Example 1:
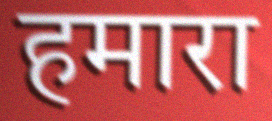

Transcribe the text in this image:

हमारा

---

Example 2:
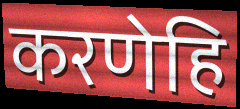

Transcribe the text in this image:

करणेहि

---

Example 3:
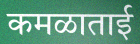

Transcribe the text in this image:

कमळाताई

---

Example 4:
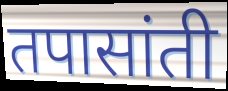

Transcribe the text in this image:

तपासांती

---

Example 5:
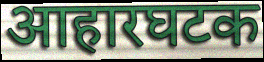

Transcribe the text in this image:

आहारघटक